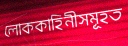
লোককাহিনীসমূহত